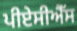
ਪੀਏਸੀਐੱਸ